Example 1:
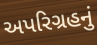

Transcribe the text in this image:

અપરિગ્રહનું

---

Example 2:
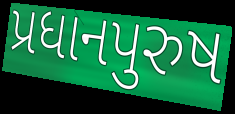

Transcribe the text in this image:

પ્રધાનપુરુષ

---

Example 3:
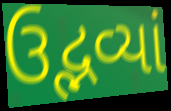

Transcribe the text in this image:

ઉદ્ભવ્યાં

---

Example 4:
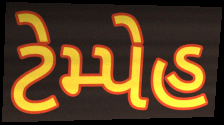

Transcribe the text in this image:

ટેમ્પેહ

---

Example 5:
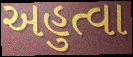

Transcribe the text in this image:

અહુત્વા